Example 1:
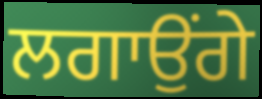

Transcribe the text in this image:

ਲਗਾਉਂਗੇ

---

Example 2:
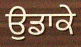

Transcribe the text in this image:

ਉਡਾਕੇ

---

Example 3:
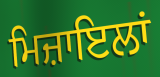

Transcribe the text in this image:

ਮਿਜ਼ਾਇਲਾਂ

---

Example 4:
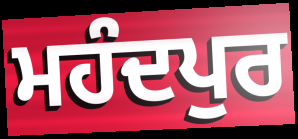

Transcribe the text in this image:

ਮਹੰਦਪੁਰ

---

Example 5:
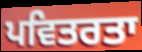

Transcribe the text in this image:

ਪਵਿਤਰਤਾ